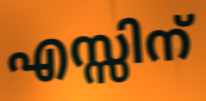
എസ്സിന്